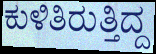
ಕುಳಿತಿರುತ್ತಿದ್ದ